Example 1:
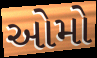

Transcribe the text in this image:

ઓમો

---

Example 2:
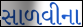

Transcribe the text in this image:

સાળવીના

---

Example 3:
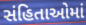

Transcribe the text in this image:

સંહિતાઓમાં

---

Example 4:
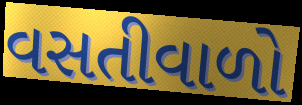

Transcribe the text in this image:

વસતીવાળો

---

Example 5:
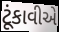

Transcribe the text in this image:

ટૂંકાવીએ